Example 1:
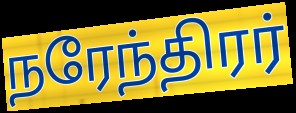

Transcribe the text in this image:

நரேந்திரர்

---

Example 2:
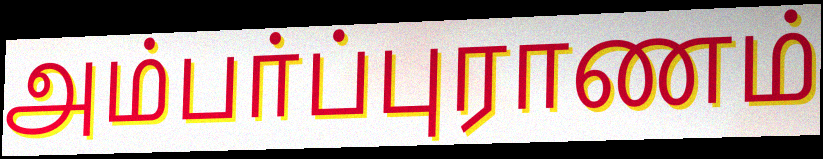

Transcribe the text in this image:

அம்பர்ப்புராணம்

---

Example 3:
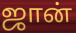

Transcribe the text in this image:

ஜான்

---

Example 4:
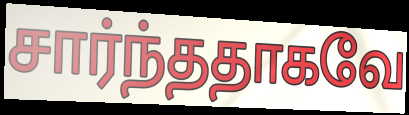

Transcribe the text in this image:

சார்ந்ததாகவே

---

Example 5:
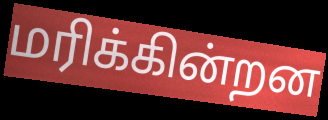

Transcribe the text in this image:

மரிக்கின்றன